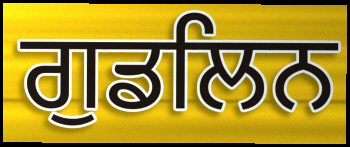
ਗੁਡਲਿਨ